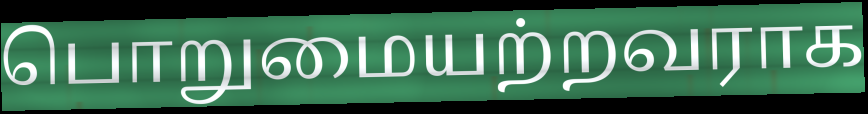
பொறுமையற்றவராக